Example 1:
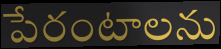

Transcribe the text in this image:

పేరంటాలను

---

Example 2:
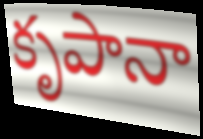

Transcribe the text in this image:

కృపానా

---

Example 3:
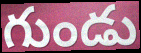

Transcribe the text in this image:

గుండు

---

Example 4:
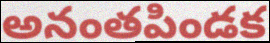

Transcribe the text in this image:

అనంతపిండక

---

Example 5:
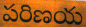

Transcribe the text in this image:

పరిణయ